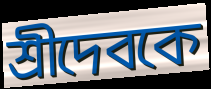
শ্রীদেবকে